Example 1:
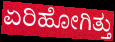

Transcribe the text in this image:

ಏರಿಹೋಗಿತ್ತು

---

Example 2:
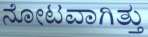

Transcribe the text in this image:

ನೋಟವಾಗಿತ್ತು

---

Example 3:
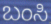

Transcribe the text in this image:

ಬಂಸಿ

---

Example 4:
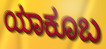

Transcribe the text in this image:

ಯಾಕೂಬ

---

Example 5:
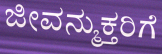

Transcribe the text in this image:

ಜೀವನ್ಮುಕ್ತರಿಗೆ